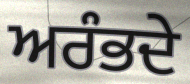
ਅਰੰਭਦੇ